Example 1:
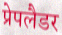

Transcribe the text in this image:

प्रेपलैडर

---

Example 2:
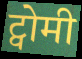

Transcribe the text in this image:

ट्वोमी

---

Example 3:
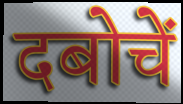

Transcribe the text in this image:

दबोचें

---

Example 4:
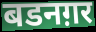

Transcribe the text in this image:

बडनग़र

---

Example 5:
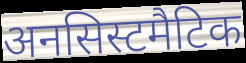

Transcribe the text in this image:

अनसिस्टमैटिक